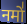
नमो॑